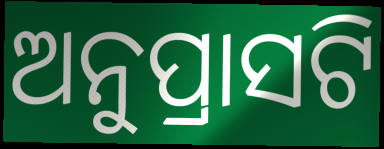
ଅନୁପ୍ରାସଟି